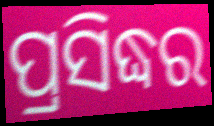
ପ୍ରସିଦ୍ଧର